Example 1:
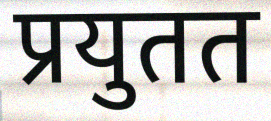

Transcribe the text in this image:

प्रयुतत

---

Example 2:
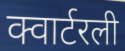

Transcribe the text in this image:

क्वार्टरली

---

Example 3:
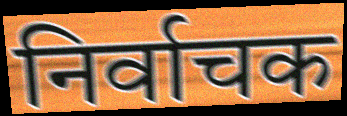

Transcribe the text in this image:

निर्वाचक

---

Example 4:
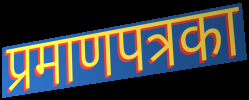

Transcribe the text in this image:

प्रमाणपत्रका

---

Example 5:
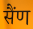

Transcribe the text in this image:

सैंण